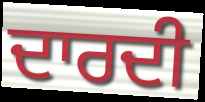
ਦਾਰਦੀ